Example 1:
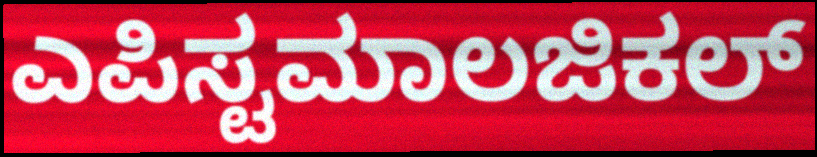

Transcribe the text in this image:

ಎಪಿಸ್ಟಮಾಲಜಿಕಲ್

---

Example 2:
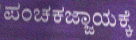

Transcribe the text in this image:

ಪಂಚಕಜ್ಜಾಯಕ್ಕೆ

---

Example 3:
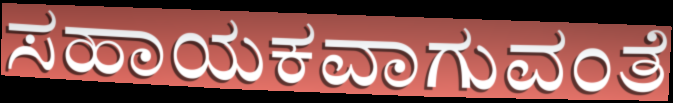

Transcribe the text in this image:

ಸಹಾಯಕವಾಗುವಂತೆ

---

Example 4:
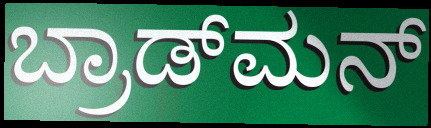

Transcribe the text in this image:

ಬ್ರಾಡ್‌ಮನ್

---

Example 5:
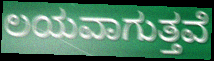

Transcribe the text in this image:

ಲಯವಾಗುತ್ತವೆ